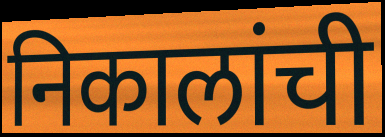
निकालांची